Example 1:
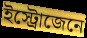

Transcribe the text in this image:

ইস্ট্রোজেনে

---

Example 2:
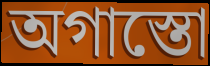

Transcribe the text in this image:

অগাস্তো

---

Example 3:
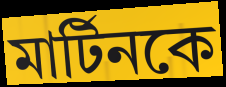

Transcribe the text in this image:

মার্টিনকে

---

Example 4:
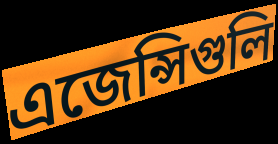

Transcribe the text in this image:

এজেন্সিগুলি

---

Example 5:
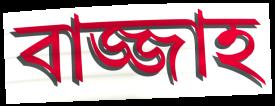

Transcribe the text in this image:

বাজ্জাহ